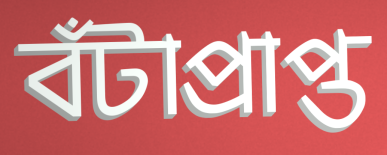
বঁটাপ্ৰাপ্ত